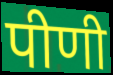
पीणी